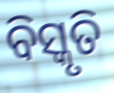
ବିସ୍କୃତି